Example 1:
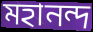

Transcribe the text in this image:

মহানন্দ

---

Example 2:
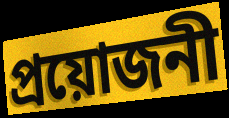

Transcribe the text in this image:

প্রয়োজনী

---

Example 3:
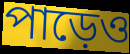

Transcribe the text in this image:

পাড়েও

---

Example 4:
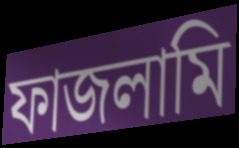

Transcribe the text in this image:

ফাজলামি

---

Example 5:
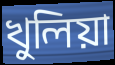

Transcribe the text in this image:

খুলিয়া